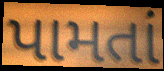
પામતાં